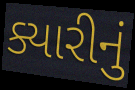
ક્યારીનું